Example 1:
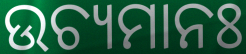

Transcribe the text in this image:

ଉଚ୍ୟମାନଃ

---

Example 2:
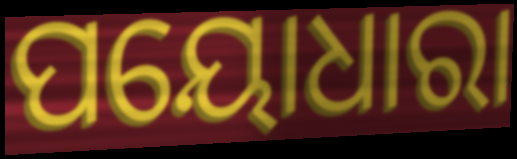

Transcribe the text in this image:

ପୟୋଧାରା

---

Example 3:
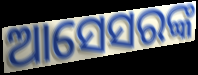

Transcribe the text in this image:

ଆସେସରଙ୍କ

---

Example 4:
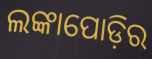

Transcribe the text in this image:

ଲଙ୍କାପୋଡ଼ିର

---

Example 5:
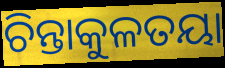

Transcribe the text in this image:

ଚିନ୍ତାକୁଳତୟା